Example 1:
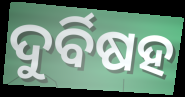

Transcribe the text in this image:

ଦୁର୍ବିଷହ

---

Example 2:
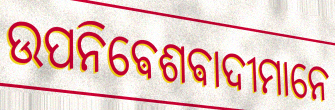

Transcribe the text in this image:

ଉପନିଵେଶଵାଦୀମାନେ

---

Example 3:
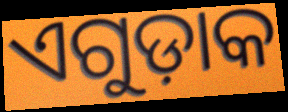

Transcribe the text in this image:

ଏଗୁଡ଼ାକ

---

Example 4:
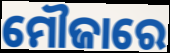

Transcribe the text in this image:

ମୌଜାରେ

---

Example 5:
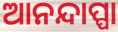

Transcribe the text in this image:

ଆନନ୍ଦାପ୍ପା